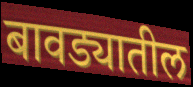
बावड्यातील